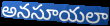
అనసూయలా